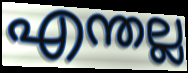
എന്തല്ല